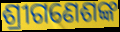
ଶ୍ରୀଗଣେଶଙ୍କ